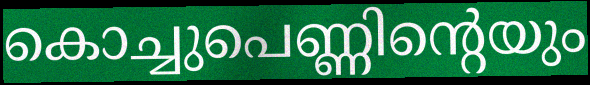
കൊച്ചുപെണ്ണിന്റെയും